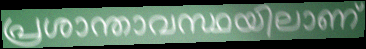
പ്രശാന്താവസ്ഥയിലാണ്